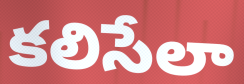
కలిసేలా